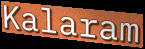
Kalaram